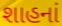
શાહનાં